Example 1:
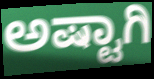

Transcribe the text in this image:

ಅಷ್ಟಾಗಿ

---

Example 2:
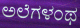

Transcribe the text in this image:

ಅಲೆಗಳಂಥ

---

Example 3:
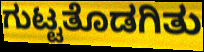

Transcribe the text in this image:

ಗುಟ್ಟತೊಡಗಿತು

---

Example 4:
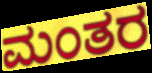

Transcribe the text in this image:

ಮಂತರ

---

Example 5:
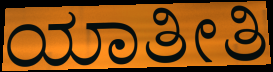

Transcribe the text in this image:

ಯಾತೀತಿ